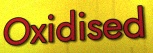
Oxidised